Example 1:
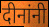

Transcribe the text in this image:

दीनांनी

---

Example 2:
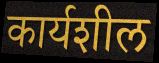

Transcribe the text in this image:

कार्यशील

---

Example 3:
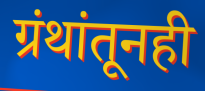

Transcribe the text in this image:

ग्रंथांतूनही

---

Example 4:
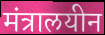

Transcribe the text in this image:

मंत्रालयीन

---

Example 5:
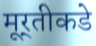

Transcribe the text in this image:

मूर्तीकडे